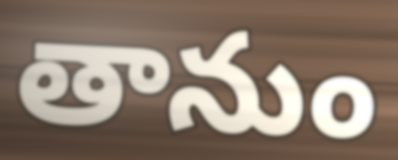
తానుం